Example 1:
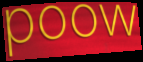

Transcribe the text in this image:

poow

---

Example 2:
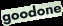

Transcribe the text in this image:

goodone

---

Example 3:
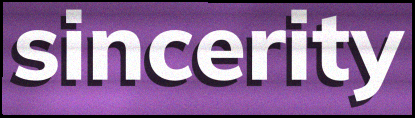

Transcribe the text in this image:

sincerity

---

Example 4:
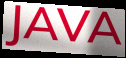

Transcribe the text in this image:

JAVA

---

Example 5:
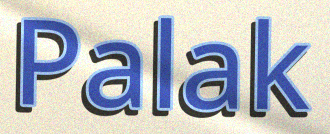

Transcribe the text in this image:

Palak